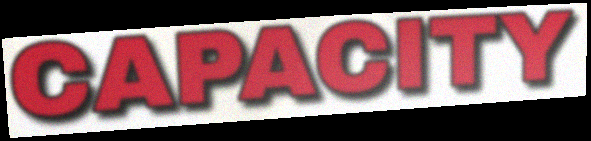
CAPACITY